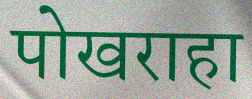
पोखराहा